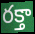
రక్తా